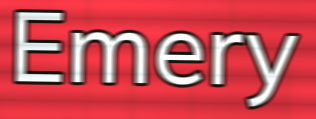
Emery